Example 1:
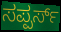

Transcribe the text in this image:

ಸಪ್ಪರ್ಸ್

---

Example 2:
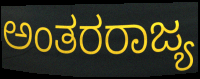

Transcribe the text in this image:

ಅಂತರರಾಜ್ಯ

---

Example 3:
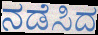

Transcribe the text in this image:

ನಡೆಸಿದ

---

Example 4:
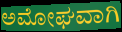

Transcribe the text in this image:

ಅಮೋಘವಾಗಿ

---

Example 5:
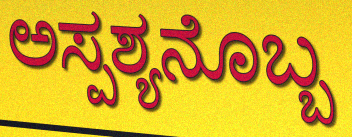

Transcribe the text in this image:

ಅಸ್ಪಶ್ಯನೊಬ್ಬ